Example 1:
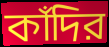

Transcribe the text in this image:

কাঁদির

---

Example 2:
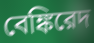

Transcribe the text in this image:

বেঙ্কিরেদ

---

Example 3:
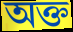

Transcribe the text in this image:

অক্ত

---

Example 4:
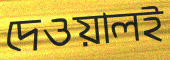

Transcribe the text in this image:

দেওয়ালই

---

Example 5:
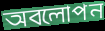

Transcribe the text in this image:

অবলোপন